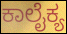
ಕಾಲೈಕ್ಯ